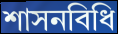
শাসনবিধি